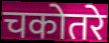
चकोतरे